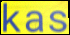
kas